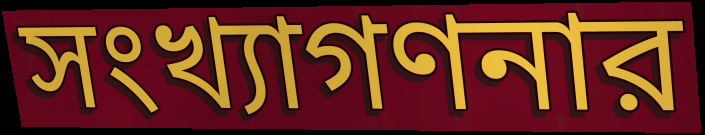
সংখ্যাগণনার